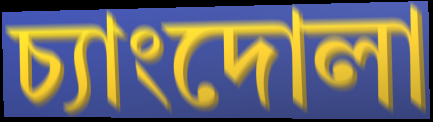
চ্যাংদোলা